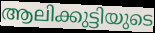
ആലിക്കുട്ടിയുടെ